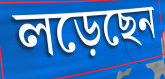
লড়েছেন